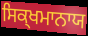
ਸਿਕ੍ਖਮਾਨਾਯ